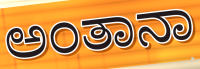
ಅಂತಾನಾ